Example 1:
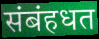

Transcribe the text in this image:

संबंहधत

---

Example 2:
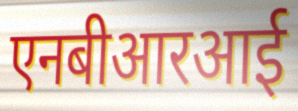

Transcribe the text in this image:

एनबीआरआई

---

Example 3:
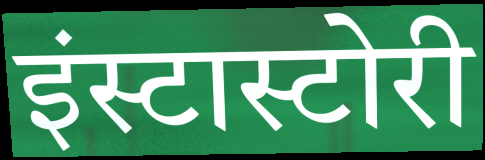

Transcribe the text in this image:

इंस्टास्टोरी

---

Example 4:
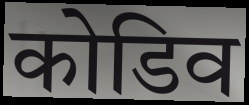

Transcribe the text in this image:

कोडिव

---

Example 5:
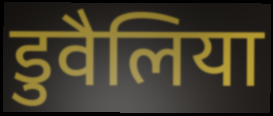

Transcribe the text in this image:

डुवैलिया